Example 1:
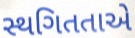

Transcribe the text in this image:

સ્થગિતતાએ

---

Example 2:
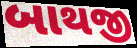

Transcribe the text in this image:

બાથજી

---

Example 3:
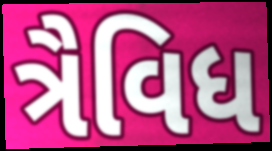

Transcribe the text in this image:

ત્રૈવિધ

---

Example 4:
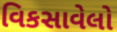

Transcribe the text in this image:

વિકસાવેલો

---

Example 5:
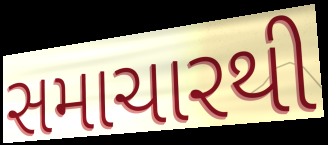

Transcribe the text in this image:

સમાચારથી